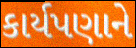
કાર્યપણાને